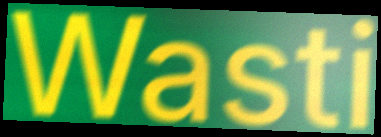
Wasti